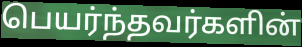
பெயர்ந்தவர்களின்